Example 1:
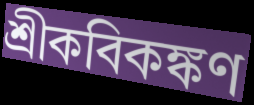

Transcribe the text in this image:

শ্রীকবিকঙ্কণ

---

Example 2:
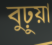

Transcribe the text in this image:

বুঢ়ুয়া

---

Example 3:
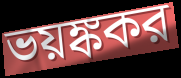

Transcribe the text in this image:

ভয়ঙ্ককর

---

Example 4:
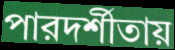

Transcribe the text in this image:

পারদর্শীতায়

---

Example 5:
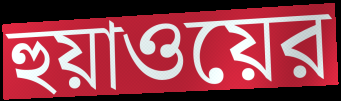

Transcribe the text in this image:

হুয়াওয়ের